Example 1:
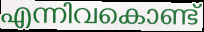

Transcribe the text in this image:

എന്നിവകൊണ്ട്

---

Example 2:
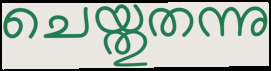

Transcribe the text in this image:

ചെയ്തുതന്നു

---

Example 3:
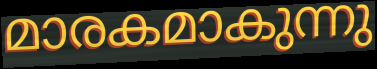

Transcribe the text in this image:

മാരകമാകുന്നു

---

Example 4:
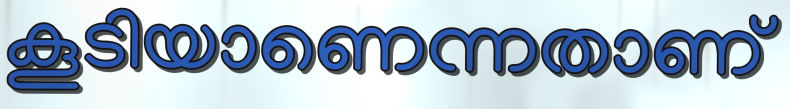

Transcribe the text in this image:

കൂടിയാണെന്നതാണ്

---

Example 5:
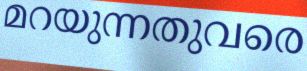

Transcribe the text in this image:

മറയുന്നതുവരെ